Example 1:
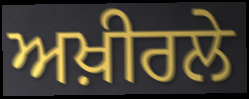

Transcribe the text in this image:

ਅਖ਼ੀਰਲੇ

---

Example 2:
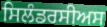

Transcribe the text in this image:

ਸਿਲੰਡਰਸੀਅਸ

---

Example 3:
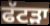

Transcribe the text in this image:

ਫੱਟੜਾ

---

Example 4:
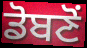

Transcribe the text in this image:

ਡੋਬਣੋਂ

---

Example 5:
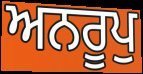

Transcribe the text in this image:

ਅਨਰੂਪੁ